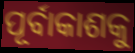
ପୂର୍ବାକାଶକୁ